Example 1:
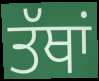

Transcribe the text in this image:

ਤੱਥਾਂ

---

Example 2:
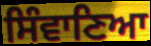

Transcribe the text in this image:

ਸਿੰਵਾਣਿਆ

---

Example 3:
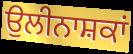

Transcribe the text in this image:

ਉਲੀਨਾਸ਼ਕਾਂ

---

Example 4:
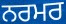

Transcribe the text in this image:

ਨਰਮਰ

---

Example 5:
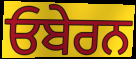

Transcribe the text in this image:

ਓਬੇਰਨ